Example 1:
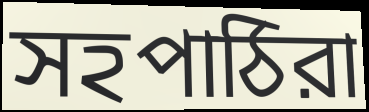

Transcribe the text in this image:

সহপাঠিরা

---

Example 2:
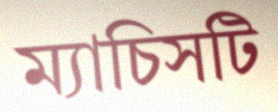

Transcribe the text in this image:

ম্যাচিসটি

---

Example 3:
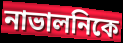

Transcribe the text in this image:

নাভালনিকে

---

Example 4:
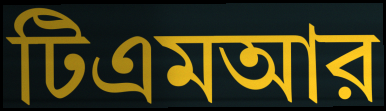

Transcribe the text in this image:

টিএমআর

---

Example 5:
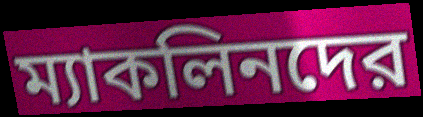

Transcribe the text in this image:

ম্যাকলিনদের